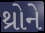
થ્રોને